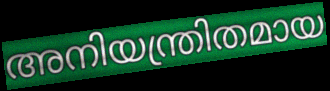
അനിയന്ത്രിതമായ